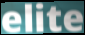
elite